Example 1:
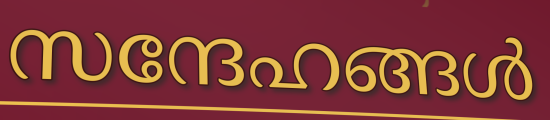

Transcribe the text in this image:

സന്ദേഹങ്ങൾ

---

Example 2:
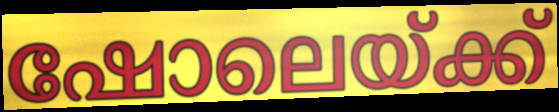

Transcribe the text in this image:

ഷോലെയ്ക്ക്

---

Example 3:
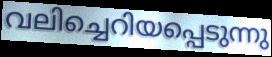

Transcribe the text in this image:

വലിച്ചെറിയപ്പെടുന്നു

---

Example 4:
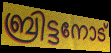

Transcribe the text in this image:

ബ്രിട്ടനോട്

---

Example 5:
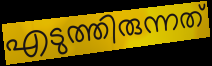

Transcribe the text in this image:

എടുത്തിരുന്നത്